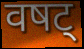
वषट्